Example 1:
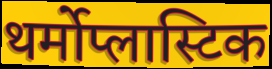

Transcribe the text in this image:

थर्मोप्लास्टिक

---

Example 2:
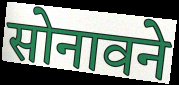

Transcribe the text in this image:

सोनावने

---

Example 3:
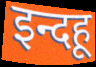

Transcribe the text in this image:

इन्दहू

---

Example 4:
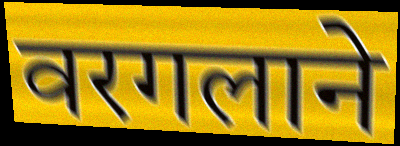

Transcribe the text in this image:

वरगलाने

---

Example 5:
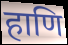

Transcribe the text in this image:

हाणि